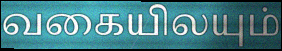
வகையிலயும்